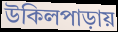
উকিলপাড়ায়